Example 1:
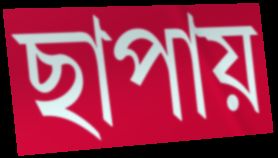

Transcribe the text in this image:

ছাপায়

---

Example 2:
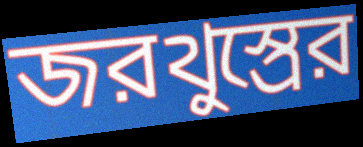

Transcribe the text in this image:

জরথুস্ত্রের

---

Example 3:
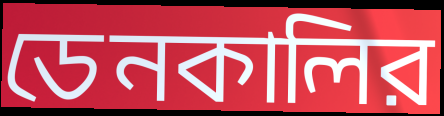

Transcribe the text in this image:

ডেনকালির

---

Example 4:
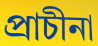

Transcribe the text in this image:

প্রাচীনা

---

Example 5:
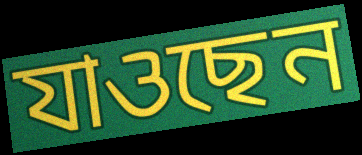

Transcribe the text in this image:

যাওছেন